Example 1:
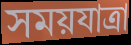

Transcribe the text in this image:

সময়যাত্রা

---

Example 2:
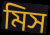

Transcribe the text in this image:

মিস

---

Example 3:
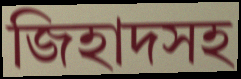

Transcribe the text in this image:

জিহাদসহ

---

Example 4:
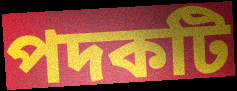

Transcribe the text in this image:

পদকটি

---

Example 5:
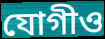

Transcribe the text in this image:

যোগীও